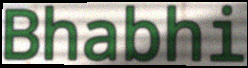
Bhabhi